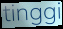
tinggi